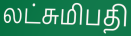
லட்சுமிபதி